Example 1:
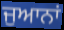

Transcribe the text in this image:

ਜੁਆਨਾਂ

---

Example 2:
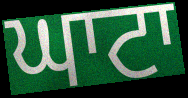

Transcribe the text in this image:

ਘਾਟਾ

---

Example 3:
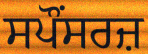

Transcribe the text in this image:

ਸਪੌਂਸਰਜ਼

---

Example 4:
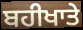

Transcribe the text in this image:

ਬਹੀਖਾਤੇ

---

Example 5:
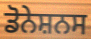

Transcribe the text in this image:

ਡੋਨੇਸ਼ਨਸ